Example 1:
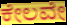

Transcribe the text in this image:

ಕೇಲವೇ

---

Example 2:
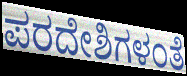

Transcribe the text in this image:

ಪರದೇಶಿಗಳಂತೆ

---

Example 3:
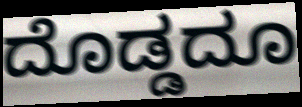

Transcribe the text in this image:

ದೊಡ್ಡದೂ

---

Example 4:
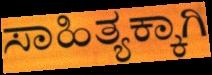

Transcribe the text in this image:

ಸಾಹಿತ್ಯಕ್ಕಾಗಿ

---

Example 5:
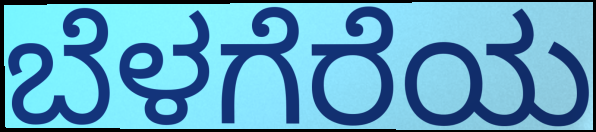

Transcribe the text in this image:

ಬೆಳಗೆರೆಯ